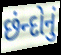
છંન્દોનું